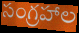
సంగ్రహాల